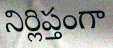
నిర్లిప్తంగా